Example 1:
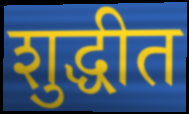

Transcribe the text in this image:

शुद्धीत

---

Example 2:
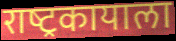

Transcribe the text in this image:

राष्ट्रकायाला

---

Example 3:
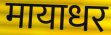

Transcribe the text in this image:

मायाधर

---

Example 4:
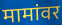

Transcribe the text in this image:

मामांवर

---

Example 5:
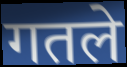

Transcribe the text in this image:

गतले